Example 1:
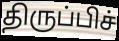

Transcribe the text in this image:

திருப்பிச்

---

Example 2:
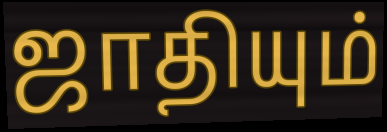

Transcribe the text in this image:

ஜாதியும்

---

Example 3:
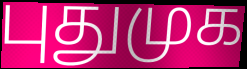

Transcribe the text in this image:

புதுமுக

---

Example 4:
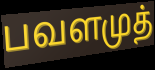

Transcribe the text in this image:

பவளமுத்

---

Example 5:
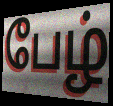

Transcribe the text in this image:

பேழ்